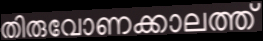
തിരുവോണക്കാലത്ത്